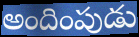
అందింపుడు